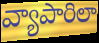
వ్యాపారిలా